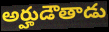
అర్హుడౌతాడు